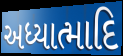
અધ્યાત્માદિ